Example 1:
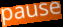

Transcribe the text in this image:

pause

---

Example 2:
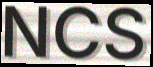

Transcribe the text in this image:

NCS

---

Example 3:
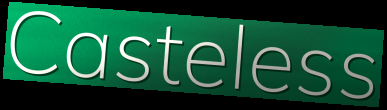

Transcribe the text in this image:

Casteless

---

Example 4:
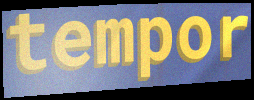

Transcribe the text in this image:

tempor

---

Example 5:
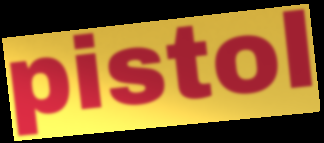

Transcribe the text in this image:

pistol